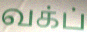
வக்ப்